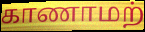
காணாமற்